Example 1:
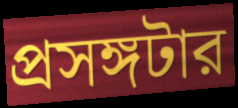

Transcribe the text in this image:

প্রসঙ্গটার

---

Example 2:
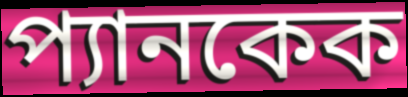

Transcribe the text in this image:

প্যানকেক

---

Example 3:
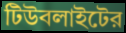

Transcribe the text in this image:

টিউবলাইটের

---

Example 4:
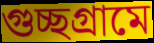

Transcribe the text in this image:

গুচ্ছগ্রামে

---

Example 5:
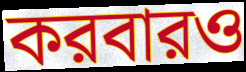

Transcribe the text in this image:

করবারও